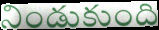
నిండుకుంది